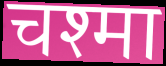
चश्मा